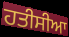
ਹਤੀਸੀਆ